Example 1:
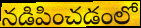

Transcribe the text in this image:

నడిపించడంలో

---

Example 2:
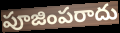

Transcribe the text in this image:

పూజింపరాదు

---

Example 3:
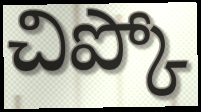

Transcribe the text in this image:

చిప్కో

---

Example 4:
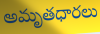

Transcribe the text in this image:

అమృతధారలు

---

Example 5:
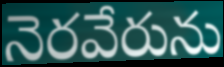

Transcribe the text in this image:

నెరవేరును